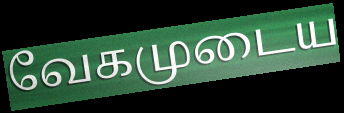
வேகமுடைய